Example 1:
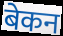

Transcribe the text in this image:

बेकन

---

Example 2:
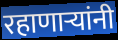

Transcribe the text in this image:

रहाणार्‍यांनी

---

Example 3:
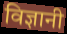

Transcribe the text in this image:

विज्ञानी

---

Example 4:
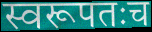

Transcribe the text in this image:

स्वरूपतःच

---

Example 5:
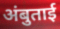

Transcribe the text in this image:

अंबुताई